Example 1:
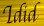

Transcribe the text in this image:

Idid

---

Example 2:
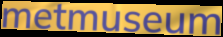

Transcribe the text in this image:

metmuseum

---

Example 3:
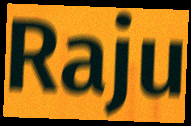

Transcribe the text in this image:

Raju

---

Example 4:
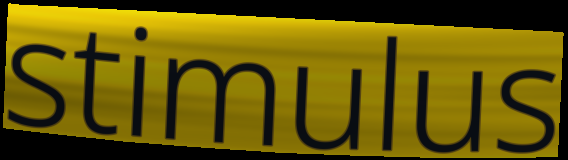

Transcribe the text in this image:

stimulus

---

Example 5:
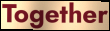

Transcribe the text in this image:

Together